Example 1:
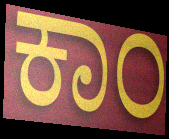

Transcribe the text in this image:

ಕಾಂ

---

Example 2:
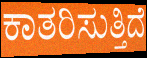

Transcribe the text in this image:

ಕಾತರಿಸುತ್ತಿದೆ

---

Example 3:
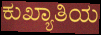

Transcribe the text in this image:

ಕುಖ್ಯಾತಿಯ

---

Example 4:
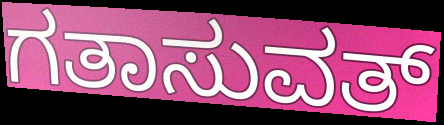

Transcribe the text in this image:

ಗತಾಸುವತ್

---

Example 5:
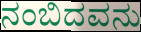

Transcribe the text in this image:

ನಂಬಿದವನು